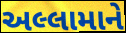
અલ્લામાને